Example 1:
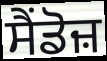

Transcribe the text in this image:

ਸੈਂਡੋਜ਼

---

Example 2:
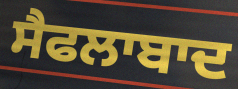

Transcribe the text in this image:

ਸੈਫਲਾਬਾਦ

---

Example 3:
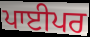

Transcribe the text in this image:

ਪਾਈਪਰ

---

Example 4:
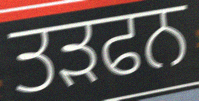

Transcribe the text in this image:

ਤੜਫਨ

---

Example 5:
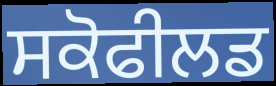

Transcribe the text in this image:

ਸਕੋਫੀਲਡ